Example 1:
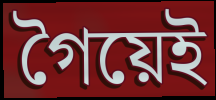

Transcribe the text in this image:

গৈয়েই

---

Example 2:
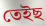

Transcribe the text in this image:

তেইছ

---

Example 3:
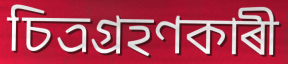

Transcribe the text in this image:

চিত্ৰগ্ৰহণকাৰী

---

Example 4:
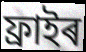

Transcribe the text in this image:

ফ্ৰাইৰ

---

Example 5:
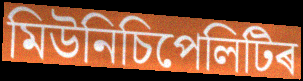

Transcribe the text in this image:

মিউনিচিপেলিটিৰ